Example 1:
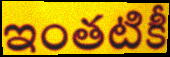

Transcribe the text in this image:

ఇంతటికీ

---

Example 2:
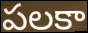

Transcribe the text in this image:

పలకా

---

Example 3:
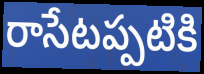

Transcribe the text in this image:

రాసేటప్పటికి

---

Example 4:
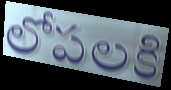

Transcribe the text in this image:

లోపలకి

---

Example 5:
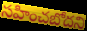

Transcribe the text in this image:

సహించబోదని